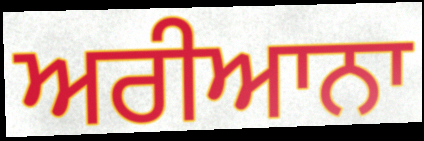
ਅਰੀਆਨਾ